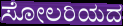
ಸೋಲರಿಯದ